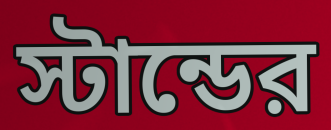
স্টান্ডের